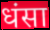
धंसा